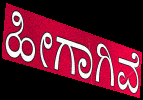
ಹೀಗಾಗಿವೆ